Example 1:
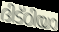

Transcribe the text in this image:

ദിട്ഠിയാ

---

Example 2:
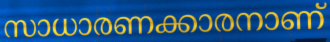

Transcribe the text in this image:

സാധാരണക്കാരനാണ്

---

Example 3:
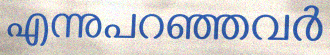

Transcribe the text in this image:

എന്നുപറഞ്ഞവർ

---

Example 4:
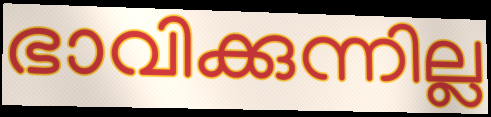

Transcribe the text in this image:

ഭാവിക്കുന്നില്ല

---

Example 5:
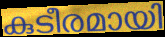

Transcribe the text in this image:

കുടീരമായി